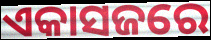
ଏକାସଜରେ